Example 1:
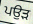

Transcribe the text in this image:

ਪਉੜ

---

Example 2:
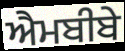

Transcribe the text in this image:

ਐਮਬੀਬੇ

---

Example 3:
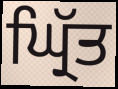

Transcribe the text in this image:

ਘ੍ਰਿੱਤ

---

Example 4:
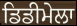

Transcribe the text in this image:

ਡਿਡੀਮੇਲਾ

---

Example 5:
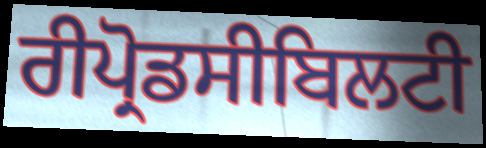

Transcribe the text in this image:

ਰੀਪ੍ਰੋਡਸੀਬਿਲਟੀ